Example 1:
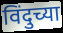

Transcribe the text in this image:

विंदुच्या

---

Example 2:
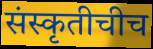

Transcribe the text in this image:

संस्कृतीचीच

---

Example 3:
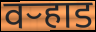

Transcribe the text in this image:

वऱ्हाड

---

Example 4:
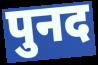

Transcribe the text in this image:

पुनद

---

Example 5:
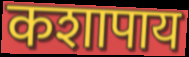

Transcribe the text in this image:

कशापाय